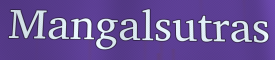
Mangalsutras